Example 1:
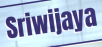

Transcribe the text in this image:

Sriwijaya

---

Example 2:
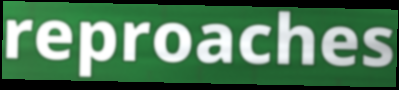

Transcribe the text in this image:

reproaches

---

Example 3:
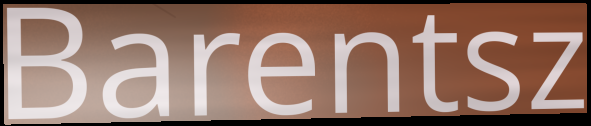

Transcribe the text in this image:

Barentsz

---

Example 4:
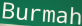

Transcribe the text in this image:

Burmah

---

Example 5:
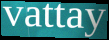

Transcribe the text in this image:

vattay